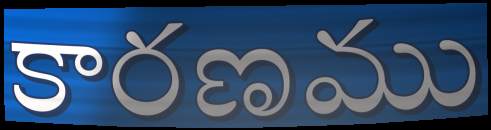
కారణము